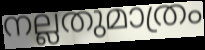
നല്ലതുമാത്രം